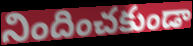
నిందించకుండా